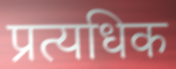
प्रत्यधिक